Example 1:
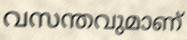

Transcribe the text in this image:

വസന്തവുമാണ്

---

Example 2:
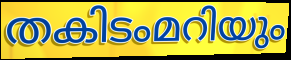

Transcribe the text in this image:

തകിടംമറിയും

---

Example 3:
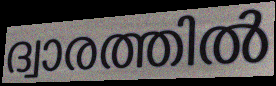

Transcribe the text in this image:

ദ്വാരത്തിൽ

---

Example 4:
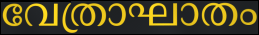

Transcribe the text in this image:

വേത്രാഘാതം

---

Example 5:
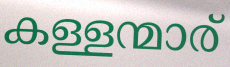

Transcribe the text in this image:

കള്ളന്മാര്